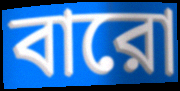
বারো